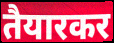
तैयारकर